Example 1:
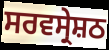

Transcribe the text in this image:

ਸਰਵਸ੍ਰੇਸ਼ਠ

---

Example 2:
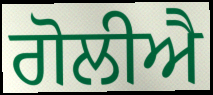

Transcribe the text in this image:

ਗੋਲੀਐ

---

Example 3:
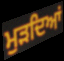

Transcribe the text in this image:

ਮੁੜਦਿਆਂ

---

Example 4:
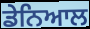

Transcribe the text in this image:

ਡੇਨਿਆਲ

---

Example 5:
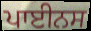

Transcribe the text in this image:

ਪਾਈਨਸ